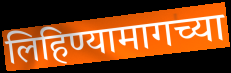
लिहिण्यामागच्या